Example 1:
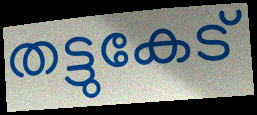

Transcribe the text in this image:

തട്ടുകേട്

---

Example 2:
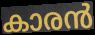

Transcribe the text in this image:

കാരൻ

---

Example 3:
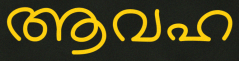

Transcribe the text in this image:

ആവഹ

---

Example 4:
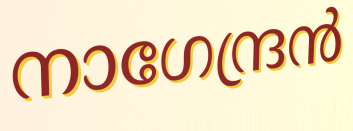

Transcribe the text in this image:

നാഗേന്ദ്രൻ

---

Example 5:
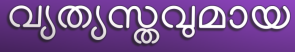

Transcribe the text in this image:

വ്യത്യസ്തവുമായ